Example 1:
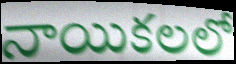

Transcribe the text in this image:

నాయికలలో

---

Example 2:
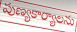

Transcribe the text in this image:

పుణ్యకార్యాలను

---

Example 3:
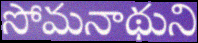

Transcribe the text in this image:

సోమనాథుని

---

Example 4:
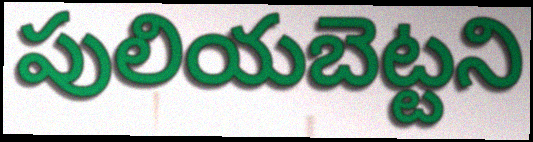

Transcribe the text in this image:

పులియబెట్టని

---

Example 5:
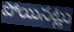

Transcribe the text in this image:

పోయినట్లు